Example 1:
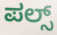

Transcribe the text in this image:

ಪಲ್ಸ್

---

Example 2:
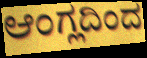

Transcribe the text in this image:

ಆಂಗ್ಲದಿಂದ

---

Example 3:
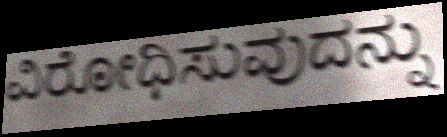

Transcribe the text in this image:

ವಿರೋಧಿಸುವುದನ್ನು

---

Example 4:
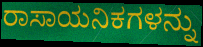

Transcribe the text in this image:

ರಾಸಾಯನಿಕಗಳನ್ನು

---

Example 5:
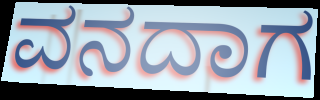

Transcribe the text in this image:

ವನದಾಗ